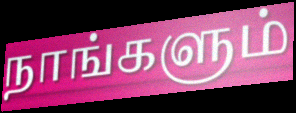
நாங்களும்